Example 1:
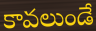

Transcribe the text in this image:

కావలుండే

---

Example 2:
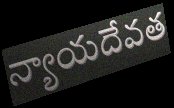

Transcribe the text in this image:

న్యాయదేవత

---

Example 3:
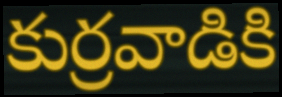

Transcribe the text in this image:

కుర్రవాడికి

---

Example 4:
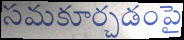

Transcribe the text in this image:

సమకూర్చడంపై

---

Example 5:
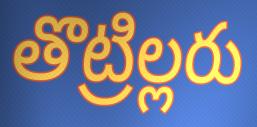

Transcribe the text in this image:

తొట్రిల్లరు